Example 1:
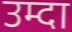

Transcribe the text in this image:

उम्‍दा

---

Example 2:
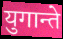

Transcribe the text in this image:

युगान्ते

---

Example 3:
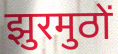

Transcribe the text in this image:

झुरमुठों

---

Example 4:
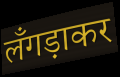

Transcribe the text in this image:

लँगड़ाकर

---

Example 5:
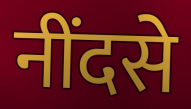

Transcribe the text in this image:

नींदसे